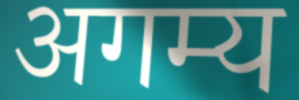
अगम्य